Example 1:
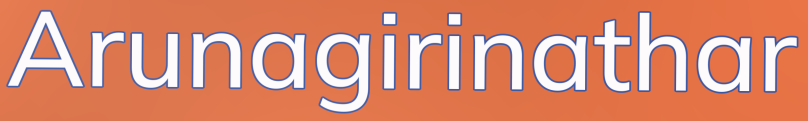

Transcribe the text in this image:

Arunagirinathar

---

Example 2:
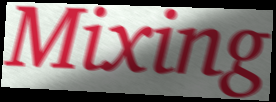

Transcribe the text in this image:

Mixing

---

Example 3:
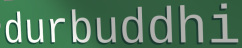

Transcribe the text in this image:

durbuddhi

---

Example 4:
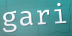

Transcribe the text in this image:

gari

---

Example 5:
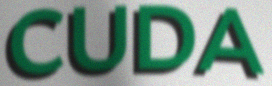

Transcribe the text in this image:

CUDA